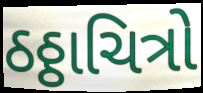
ઠઠ્ઠાચિત્રો